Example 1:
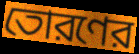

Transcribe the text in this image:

তোরণের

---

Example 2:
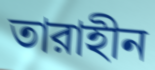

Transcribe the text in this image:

তারাহীন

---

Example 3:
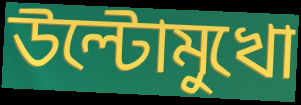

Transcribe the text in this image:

উল্টোমুখো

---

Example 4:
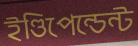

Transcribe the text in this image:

ইণ্ডিপেন্ডেন্ট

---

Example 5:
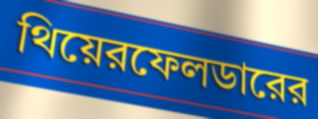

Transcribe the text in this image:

থিয়েরফেলডারের